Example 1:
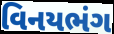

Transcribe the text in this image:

વિનયભંગ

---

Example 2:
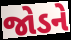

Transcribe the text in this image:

જોડને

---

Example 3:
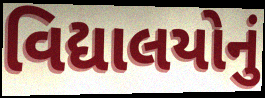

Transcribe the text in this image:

વિદ્યાલયોનું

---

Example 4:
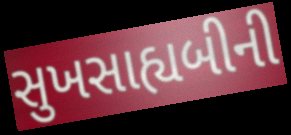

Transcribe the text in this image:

સુખસાહ્યબીની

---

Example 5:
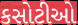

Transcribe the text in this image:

કસોટીઓ